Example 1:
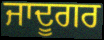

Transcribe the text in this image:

ਜਾਦੂਗਰ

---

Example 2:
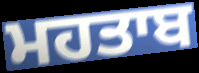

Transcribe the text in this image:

ਮਹਤਾਬ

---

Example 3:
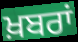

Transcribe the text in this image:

ਖ਼ਬਰਾਂ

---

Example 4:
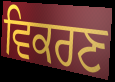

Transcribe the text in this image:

ਵਿਕਰਣ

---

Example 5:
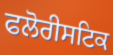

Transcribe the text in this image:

ਫਲੋਰੀਸਟਿਕ